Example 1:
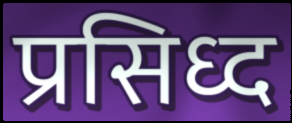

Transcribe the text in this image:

प्रसिध्द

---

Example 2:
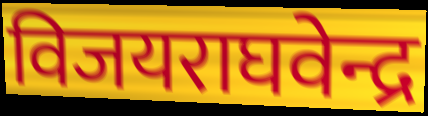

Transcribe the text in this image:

विजयराघवेन्द्र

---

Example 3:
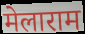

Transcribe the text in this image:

मेलाराम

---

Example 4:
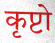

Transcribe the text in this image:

कृप्टो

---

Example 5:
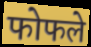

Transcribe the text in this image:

फोफले